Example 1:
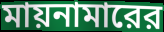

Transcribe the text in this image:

মায়নামারের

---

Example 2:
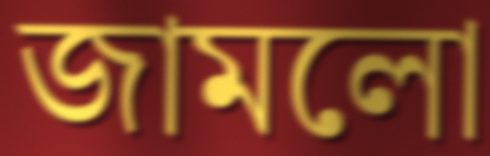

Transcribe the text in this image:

জামলো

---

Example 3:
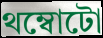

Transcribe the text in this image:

থম্বোটো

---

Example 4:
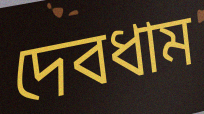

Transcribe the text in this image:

দেবধাম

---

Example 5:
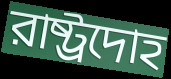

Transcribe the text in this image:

রাষ্ট্রদোহ